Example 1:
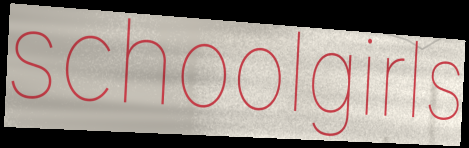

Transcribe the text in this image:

schoolgirls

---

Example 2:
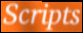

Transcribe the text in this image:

Scripts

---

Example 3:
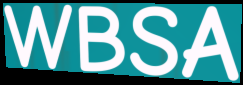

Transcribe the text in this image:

WBSA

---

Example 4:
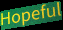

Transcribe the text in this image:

Hopeful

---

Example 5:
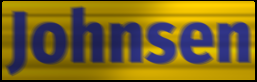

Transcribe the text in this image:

Johnsen